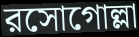
রসোগোল্লা